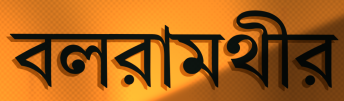
বলরামথীর